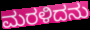
ಮರಳಿದನು